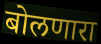
बोलणारा